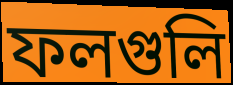
ফলগুলি